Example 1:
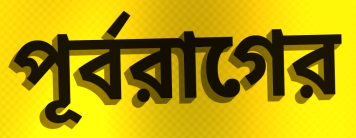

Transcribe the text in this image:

পূর্বরাগের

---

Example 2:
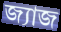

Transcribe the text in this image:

জ্যাজ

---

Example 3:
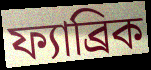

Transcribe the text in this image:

ফ্যাব্রিক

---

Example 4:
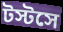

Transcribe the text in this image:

টস্টসে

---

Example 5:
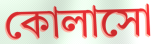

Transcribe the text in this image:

কোলাসো